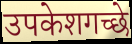
उपकेशगच्छे